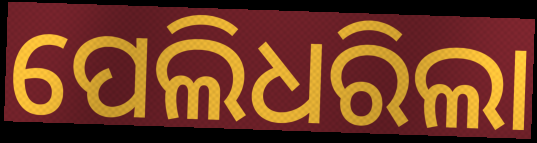
ପେଲିଧରିଲା